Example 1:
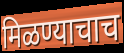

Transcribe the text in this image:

मिळण्याचाच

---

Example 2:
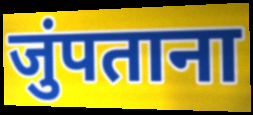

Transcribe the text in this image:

जुंपताना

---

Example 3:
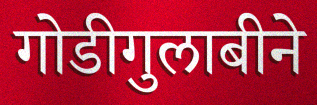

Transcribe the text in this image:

गोडीगुलाबीने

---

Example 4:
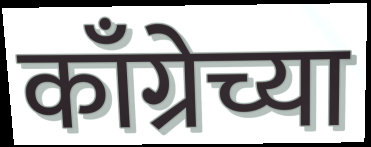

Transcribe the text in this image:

काँग्रेच्या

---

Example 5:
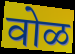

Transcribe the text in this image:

वोळ